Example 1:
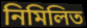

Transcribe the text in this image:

নিমিলিত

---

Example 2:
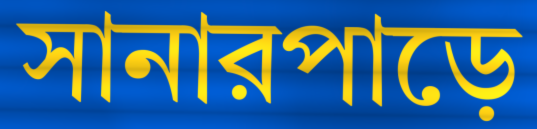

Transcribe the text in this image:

সানারপাড়ে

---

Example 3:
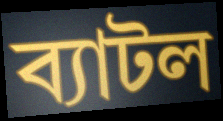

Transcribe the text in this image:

ব্যাটল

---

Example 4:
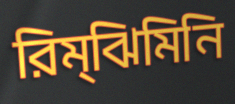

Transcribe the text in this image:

রিম্‌ঝিমিনি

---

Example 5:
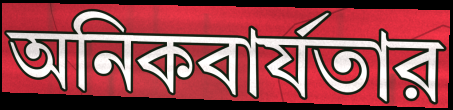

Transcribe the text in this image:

অনিকবার্যতার